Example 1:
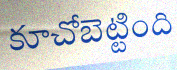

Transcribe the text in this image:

కూచోబెట్టింది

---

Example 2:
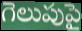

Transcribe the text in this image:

గెలుపుపై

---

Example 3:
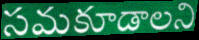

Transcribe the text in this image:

సమకూడాలని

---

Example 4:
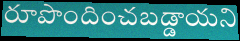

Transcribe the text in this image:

రూపొందించబడ్డాయని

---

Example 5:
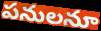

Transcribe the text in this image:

పనులనూ